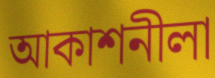
আকাশনীলা